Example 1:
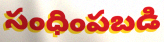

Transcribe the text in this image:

సంధింపబడి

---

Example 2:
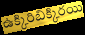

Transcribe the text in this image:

ఉక్కిరిబిక్కిరయి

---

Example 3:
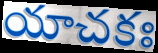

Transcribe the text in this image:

యాచకః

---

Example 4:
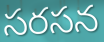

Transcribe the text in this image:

సరసన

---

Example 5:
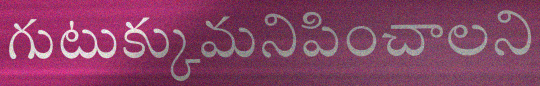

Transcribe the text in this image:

గుటుక్కుమనిపించాలని